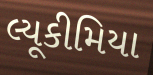
લ્યૂકીમિયા